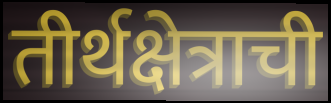
तीर्थक्षेत्राची